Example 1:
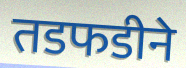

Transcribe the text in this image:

तडफडीने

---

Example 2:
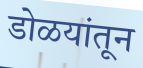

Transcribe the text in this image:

डोळयांतून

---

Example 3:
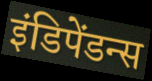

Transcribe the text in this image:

इंडिपेंडन्स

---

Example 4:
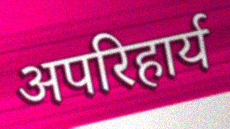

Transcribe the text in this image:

अपरिहार्य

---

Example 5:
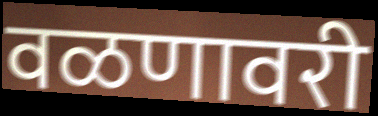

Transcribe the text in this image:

वळणावरी